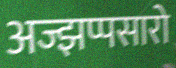
अज्झप्पसारो